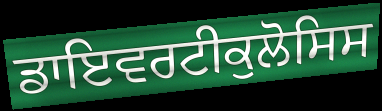
ਡਾਇਵਰਟੀਕੁਲੋਸਿਸ